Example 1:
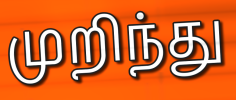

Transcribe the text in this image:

முறிந்து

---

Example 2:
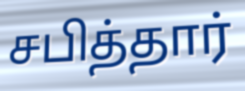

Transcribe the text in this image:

சபித்தார்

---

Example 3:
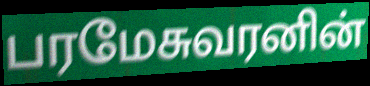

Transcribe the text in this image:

பரமேசுவரனின்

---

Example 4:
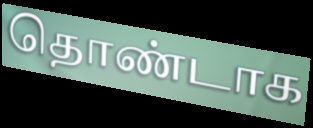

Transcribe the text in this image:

தொண்டாக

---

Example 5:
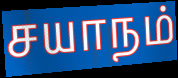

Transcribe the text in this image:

சயாநம்